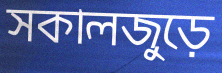
সকালজুড়ে